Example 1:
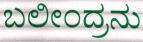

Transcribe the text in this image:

ಬಲೀಂದ್ರನು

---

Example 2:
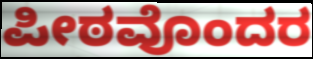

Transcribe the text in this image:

ಪೀಠವೊಂದರ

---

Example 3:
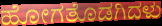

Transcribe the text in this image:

ಹೋಗತೊಡಗಿದಳು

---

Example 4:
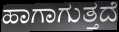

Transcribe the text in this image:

ಹಾಗಾಗುತ್ತದೆ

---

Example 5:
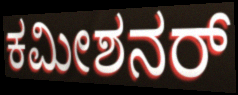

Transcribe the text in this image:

ಕಮೀಶನರ್